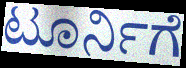
ಟೂರ್ನಿಗೆ